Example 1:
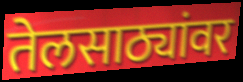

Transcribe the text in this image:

तेलसाठ्यांवर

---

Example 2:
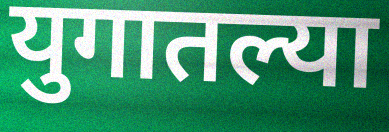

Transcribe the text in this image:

युगातल्या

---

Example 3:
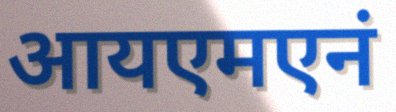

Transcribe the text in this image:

आयएमएनं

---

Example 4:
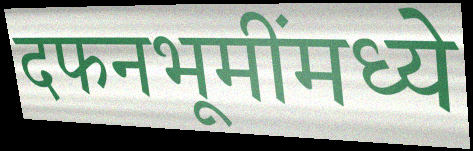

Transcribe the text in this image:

दफनभूमींमध्ये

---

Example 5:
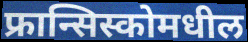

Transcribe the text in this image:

फ्रान्सिस्कोमधील